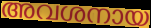
അവശനായ